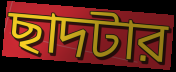
ছাদটার